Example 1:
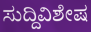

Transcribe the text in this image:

ಸುದ್ದಿವಿಶೇಷ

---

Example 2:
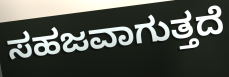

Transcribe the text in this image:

ಸಹಜವಾಗುತ್ತದೆ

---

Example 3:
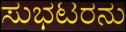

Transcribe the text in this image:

ಸುಭಟರನು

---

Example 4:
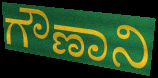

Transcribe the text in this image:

ಗೌಣಾನಿ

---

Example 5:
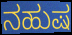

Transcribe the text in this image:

ನಹುಷ